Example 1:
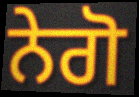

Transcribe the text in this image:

ਨੇਗੋ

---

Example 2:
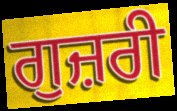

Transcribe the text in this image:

ਗੁਜ਼ਰੀ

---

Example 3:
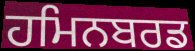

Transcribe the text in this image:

ਹਮਿਨਬਰਡ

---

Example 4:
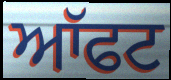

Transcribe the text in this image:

ਆੱਫਟ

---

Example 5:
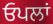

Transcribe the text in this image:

ਓਪਲਾਂ